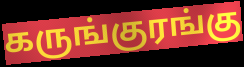
கருங்குரங்கு